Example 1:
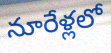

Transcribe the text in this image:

నూరేళ్లలో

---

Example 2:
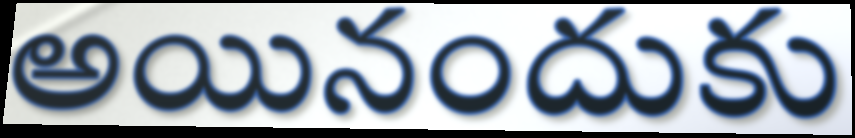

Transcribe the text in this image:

అయినందుకు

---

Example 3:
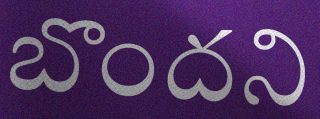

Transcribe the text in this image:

బొందని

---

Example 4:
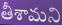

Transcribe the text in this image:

తీశామని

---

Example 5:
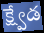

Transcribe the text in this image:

క్ష్వేడ